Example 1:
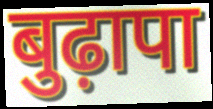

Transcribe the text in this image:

बुढ़ापा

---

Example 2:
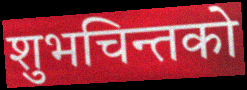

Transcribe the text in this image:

शुभचिन्तको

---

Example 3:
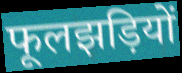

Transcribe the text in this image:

फूलझड़ियों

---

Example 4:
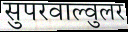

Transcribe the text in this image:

सुपरवाल्वुलर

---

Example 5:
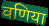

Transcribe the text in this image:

वणिया